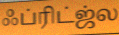
ஃப்ரிட்ஜ்ல